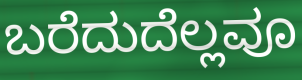
ಬರೆದುದೆಲ್ಲವೂ